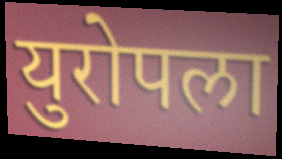
युरोपला